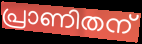
പ്രാണിതന്